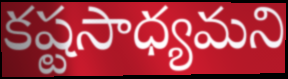
కష్టసాధ్యమని